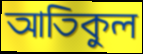
আতিকুল